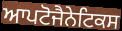
ਆਪਟੋਜੈਨੇਟਿਕਸ